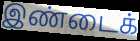
இண்டைக்